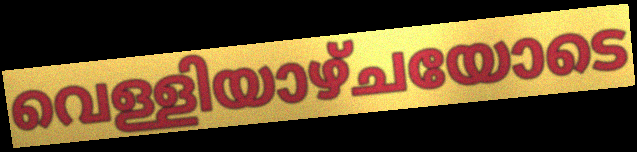
വെള്ളിയാഴ്ചയോടെ